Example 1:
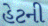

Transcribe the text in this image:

હેટની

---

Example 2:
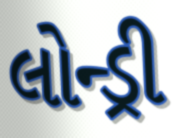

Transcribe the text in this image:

લોન્ડ્રી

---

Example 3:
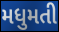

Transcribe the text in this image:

મધુમતી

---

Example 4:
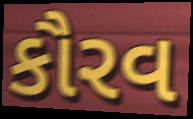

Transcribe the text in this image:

કૌરવ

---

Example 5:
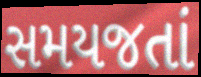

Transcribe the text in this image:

સમયજતાં